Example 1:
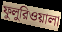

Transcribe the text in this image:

ফুলুরিওয়ালা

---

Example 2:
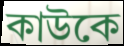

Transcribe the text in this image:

কাউকে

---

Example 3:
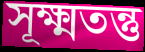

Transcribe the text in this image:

সূক্ষ্মতন্তু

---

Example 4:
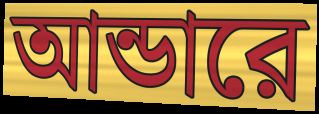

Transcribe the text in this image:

আন্ডারে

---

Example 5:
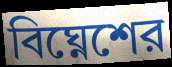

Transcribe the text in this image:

বিঘ্নেশের